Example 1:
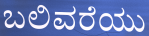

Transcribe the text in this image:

ಬಲಿವರೆಯು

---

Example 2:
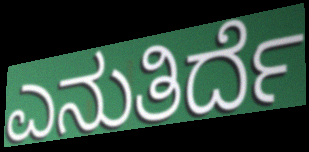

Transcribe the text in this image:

ಎನುತಿರ್ದೆ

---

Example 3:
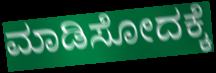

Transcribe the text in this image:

ಮಾಡಿಸೋದಕ್ಕೆ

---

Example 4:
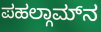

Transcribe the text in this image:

ಪಹಲ್ಗಾಮ್‌ನ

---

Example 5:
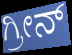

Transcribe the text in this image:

ಗ್ರೀನ್